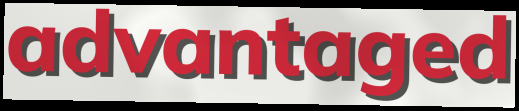
advantaged